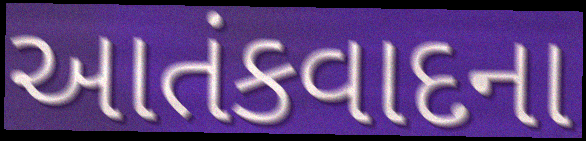
આતંકવાદના